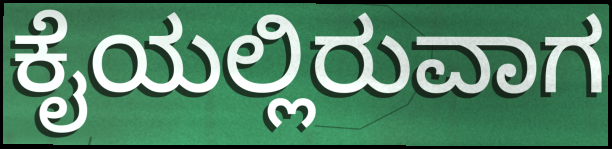
ಕೈಯಲ್ಲಿರುವಾಗ